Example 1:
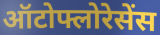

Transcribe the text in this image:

ऑटोफ्लोरेसेंस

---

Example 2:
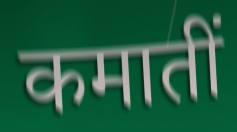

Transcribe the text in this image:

कमातीं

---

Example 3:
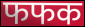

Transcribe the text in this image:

फफक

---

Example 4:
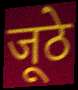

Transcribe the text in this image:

जूठे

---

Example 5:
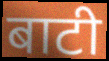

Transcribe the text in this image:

बाटी